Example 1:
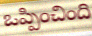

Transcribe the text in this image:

ఒప్పించింది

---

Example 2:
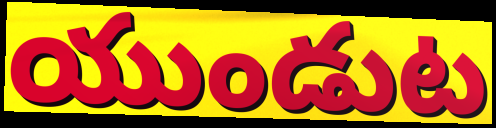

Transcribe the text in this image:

యుండుట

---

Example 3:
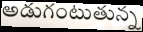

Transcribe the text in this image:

అడుగంటుతున్న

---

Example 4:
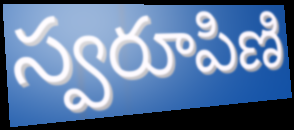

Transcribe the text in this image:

స్వరూపిణి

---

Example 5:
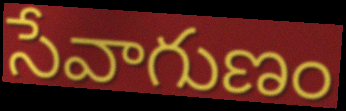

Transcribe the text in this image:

సేవాగుణం